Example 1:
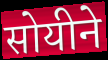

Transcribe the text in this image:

सोयीने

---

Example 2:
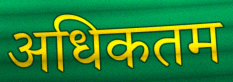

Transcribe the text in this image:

अधिकतम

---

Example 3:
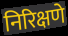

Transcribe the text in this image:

निरिक्षणे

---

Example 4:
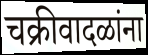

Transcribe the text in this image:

चक्रीवादळांना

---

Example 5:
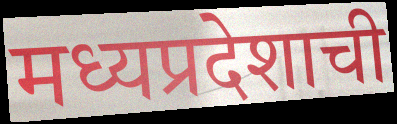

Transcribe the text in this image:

मध्यप्रदेशाची